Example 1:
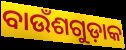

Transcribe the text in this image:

ବାଉଁଶଗୁଡ଼ାକ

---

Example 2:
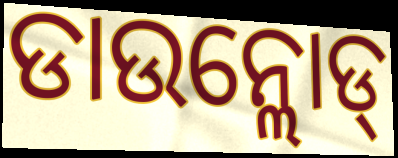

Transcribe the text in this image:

ଡାଉନ୍ଲୋଡ୍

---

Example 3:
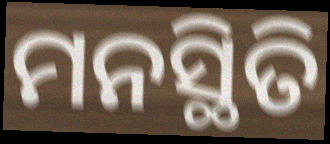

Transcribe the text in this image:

ମନସ୍ଥିତି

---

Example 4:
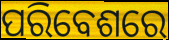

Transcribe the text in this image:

ପରିବେଶରେ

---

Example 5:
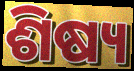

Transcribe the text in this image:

ଶିଷ୍ୟ